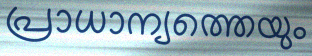
പ്രാധാന്യത്തെയും